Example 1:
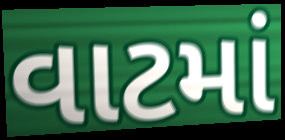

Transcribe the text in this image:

વાટમાં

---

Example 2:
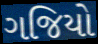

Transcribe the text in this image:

ગજિયો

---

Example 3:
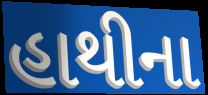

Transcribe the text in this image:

હાથીના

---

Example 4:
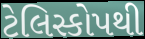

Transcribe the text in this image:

ટેલિસ્કોપથી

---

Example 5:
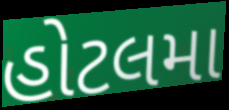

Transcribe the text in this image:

હોટલમા